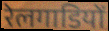
रेलगाडियों